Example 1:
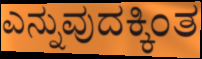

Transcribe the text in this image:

ಎನ್ನುವುದಕ್ಕಿಂತ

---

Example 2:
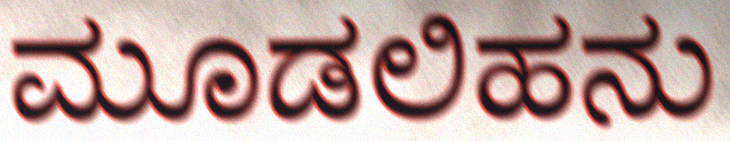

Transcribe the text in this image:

ಮೂಡಲಿಹನು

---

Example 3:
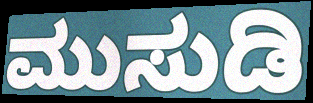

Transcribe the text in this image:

ಮುಸುಡಿ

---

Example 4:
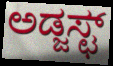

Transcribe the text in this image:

ಅಡ್ಜಸ್ಟ್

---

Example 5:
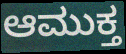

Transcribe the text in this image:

ಆಮುಕ್ತ